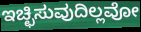
ಇಚ್ಛಿಸುವುದಿಲ್ಲವೋ